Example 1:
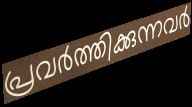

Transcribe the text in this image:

പ്രവർത്തിക്കുന്നവർ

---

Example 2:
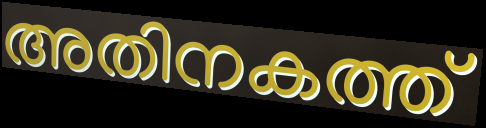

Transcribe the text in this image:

അതിനകത്ത്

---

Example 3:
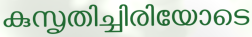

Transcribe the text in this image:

കുസൃതിച്ചിരിയോടെ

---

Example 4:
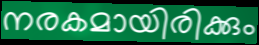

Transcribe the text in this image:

നരകമായിരിക്കും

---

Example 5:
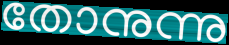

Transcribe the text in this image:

തോനുന്നു